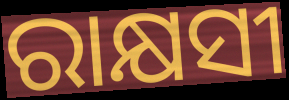
ରାକ୍ଷସୀ